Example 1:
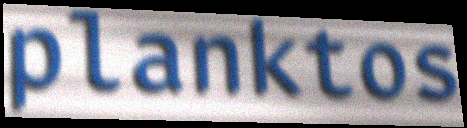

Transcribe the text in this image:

planktos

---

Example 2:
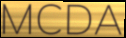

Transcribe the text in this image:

MCDA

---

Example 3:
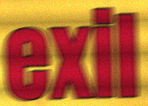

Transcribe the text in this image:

exil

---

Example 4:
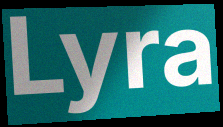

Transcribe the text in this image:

Lyra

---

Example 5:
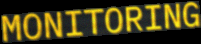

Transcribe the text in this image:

MONITORING